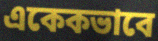
একেকভাবে